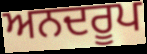
ਅਨਦਰੂਪ